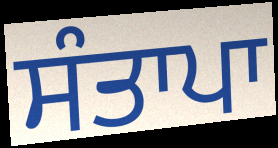
ਸੰਤਾਪਾ